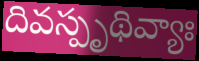
దివస్పృథివ్యాః